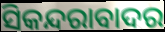
ସିକନ୍ଦରାବାଦର